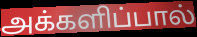
அக்களிப்பால்